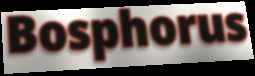
Bosphorus